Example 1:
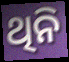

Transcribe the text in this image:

ଥିନି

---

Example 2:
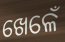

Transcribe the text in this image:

ଖେଳେଁ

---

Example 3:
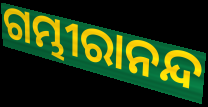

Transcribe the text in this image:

ଗମ୍ଭୀରାନନ୍ଦ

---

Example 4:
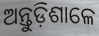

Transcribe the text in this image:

ଅନ୍ତୁଡ଼ିଶାଳେ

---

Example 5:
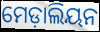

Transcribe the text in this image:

ମେଡ଼ାଲିୟନ